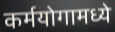
कर्मयोगामध्ये